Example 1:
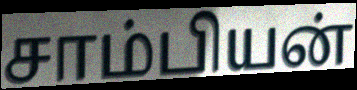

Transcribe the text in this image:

சாம்பியன்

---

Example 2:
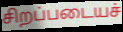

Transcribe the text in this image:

சிறப்படையச்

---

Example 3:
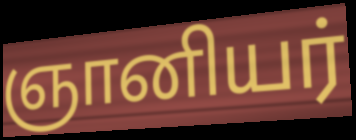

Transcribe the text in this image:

ஞானியர்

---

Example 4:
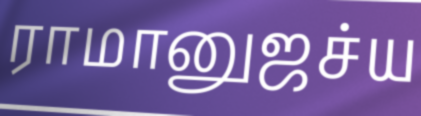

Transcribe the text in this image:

ராமானுஜச்ய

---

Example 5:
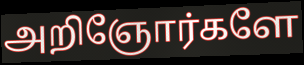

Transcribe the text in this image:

அறிஞோர்களே